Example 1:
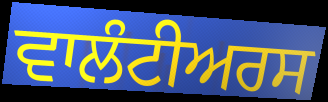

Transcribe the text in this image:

ਵਾਲੰਟੀਅਰਸ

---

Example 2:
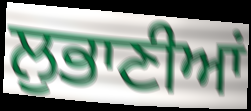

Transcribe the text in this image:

ਲੁਭਾਣੀਆਂ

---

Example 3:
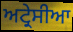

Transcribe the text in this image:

ਅਟ੍ਰੇਸੀਆ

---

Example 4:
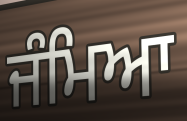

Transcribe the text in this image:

ਜੰਮਿਆ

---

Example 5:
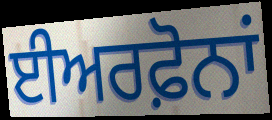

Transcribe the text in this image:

ਈਅਰਫ਼ੋਨਾਂ